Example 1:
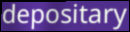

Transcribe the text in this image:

depositary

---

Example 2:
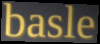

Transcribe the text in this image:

basle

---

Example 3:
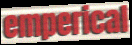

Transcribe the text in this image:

emperical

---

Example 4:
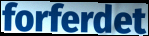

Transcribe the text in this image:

forferdet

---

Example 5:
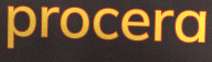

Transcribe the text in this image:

procera